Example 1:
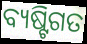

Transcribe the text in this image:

ବ୍ୟଷ୍ଟିଗତ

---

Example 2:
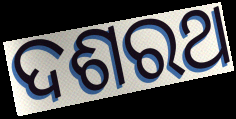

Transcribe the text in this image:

ଦଶରଥ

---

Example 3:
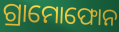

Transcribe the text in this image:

ଗ୍ରାମୋଫୋନ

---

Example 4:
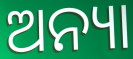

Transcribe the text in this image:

ଅନ୍ୟା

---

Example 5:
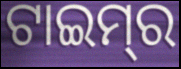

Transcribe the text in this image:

ଟାଇମ୍‌ର